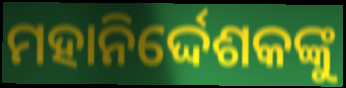
ମହାନିର୍ଦ୍ଦେଶକଙ୍କୁ